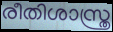
രീതിശാസ്ത്ര